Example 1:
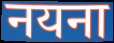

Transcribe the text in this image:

नयना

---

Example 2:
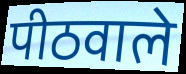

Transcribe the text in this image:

पीठवाले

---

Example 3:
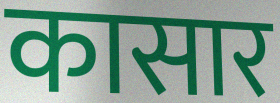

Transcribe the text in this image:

कासार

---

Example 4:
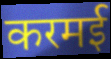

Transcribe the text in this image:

करमई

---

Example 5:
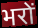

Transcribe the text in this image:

भरों